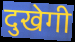
दुखेगी